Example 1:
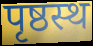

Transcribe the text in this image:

पृष्ठस्थ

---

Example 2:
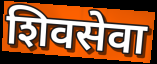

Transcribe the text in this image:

शिवसेवा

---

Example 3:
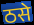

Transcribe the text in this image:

ठसे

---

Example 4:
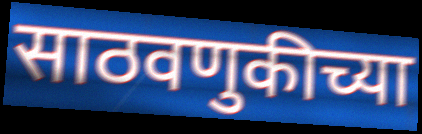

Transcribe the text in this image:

साठवणुकीच्या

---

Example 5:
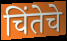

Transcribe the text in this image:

चिंतेचे